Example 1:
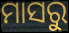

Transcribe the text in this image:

ମାସରୁ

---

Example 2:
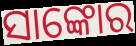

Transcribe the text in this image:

ସାଙ୍କୋର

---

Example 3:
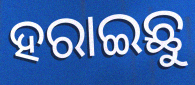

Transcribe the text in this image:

ହରାଇଛୁ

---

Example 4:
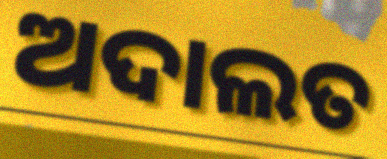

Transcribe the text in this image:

ଅଦାଲତ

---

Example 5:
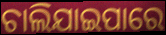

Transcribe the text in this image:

ଚାଲିଯାଇପାରେ